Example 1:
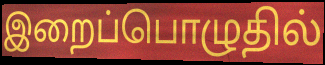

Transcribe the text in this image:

இறைப்பொழுதில்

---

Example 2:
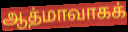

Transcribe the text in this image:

ஆத்மாவாகக்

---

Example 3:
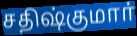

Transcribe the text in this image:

சதிஷ்குமார்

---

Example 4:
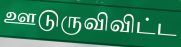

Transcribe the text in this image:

ஊடுருவிவிட்ட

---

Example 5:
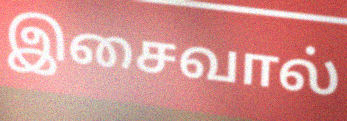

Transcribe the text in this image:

இசைவால்